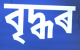
বৃদ্ধৰ